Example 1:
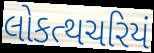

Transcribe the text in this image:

લોકત્થચરિયં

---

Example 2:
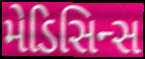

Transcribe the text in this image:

મેડિસિન્સ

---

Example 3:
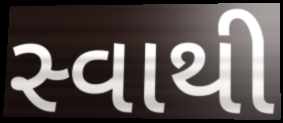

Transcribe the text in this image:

સ્વાથી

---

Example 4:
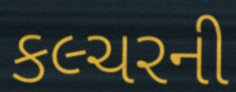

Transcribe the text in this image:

કલ્ચરની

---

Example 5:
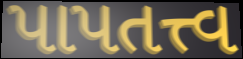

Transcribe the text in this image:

પાપતત્ત્વ